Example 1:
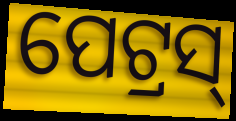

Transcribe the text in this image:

ପେଟ୍ରସ୍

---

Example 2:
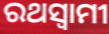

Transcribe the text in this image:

ରଥସ୍ୱାମୀ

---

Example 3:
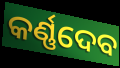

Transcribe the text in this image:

କର୍ଣ୍ଣଦେବ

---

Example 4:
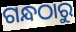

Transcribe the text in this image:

ଗନ୍ଧଠାରୁ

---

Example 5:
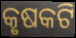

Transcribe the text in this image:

କୃଷକଟି